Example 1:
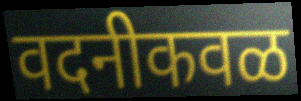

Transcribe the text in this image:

वदनीकवळ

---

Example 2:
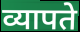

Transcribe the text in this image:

व्यापते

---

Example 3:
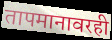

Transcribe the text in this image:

तापमानावरही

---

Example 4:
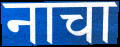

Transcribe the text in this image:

नाचा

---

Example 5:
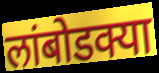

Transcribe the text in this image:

लांबोडक्या